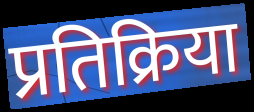
प्रतिक्रिया